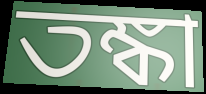
তঙ্কা